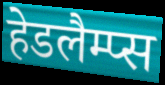
हेडलैम्प्स